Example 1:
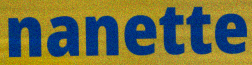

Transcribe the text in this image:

nanette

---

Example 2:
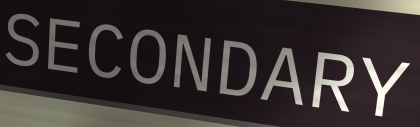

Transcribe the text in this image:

SECONDARY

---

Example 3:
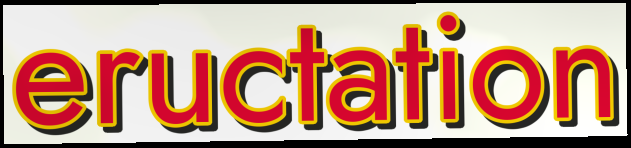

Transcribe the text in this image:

eructation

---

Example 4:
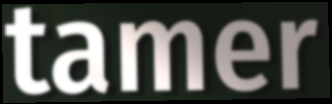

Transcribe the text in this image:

tamer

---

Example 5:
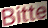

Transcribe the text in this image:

Bitte